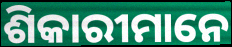
ଶିକାରୀମାନେ